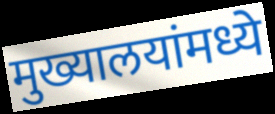
मुख्यालयांमध्ये